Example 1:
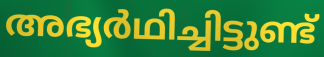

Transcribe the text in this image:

അഭ്യർഥിച്ചിട്ടുണ്ട്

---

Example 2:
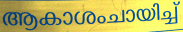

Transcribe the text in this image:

ആകാശംചായിച്ച്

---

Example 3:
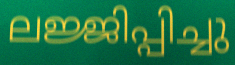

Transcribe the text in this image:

ലജ്ജിപ്പിച്ചു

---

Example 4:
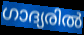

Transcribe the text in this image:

ഗാദ്യരിൽ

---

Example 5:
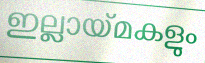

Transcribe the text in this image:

ഇല്ലായ്മകളും